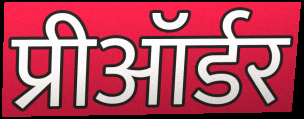
प्रीऑर्डर